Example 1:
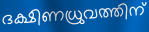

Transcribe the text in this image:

ദക്ഷിണധ്രുവത്തിന്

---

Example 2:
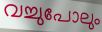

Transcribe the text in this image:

വച്ചുപോലും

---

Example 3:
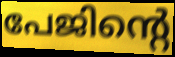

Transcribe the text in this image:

പേജിന്റെ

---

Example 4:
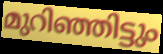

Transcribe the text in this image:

മുറിഞ്ഞിട്ടും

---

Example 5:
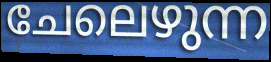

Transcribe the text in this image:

ചേലെഴുന്ന